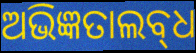
ଅଭିଜ୍ଞତାଲବ୍‌ଧ